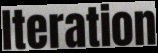
Iteration